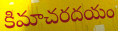
కిమాచరదయం